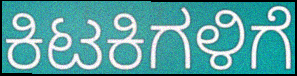
ಕಿಟಕಿಗಳಿಗೆ